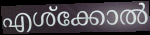
എശ്ക്കോൽ